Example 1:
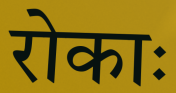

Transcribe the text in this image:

रोकाः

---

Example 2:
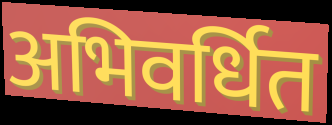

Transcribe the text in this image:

अभिवर्धित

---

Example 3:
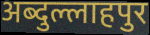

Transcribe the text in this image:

अब्दुल्लाहपुर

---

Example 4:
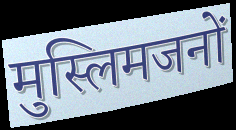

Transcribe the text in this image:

मुस्लिमजनों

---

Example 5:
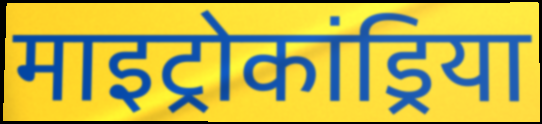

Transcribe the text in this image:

माइट्रोकांड्रिया